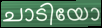
ചാടിയോ